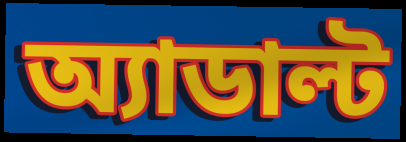
অ্যাডাল্ট